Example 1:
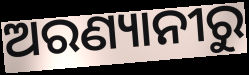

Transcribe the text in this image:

ଅରଣ୍ୟାନୀରୁ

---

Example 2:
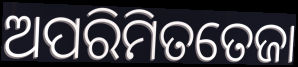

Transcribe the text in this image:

ଅପରିମିତତେଜା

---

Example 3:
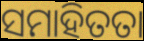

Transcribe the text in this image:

ସମାହିତତା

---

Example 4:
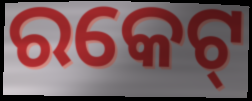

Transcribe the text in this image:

ରକେଟ୍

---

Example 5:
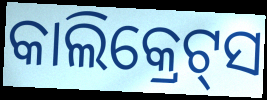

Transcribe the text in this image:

କାଲିକ୍ରେଟ୍‍ସ